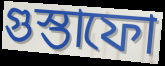
গুস্তাফো